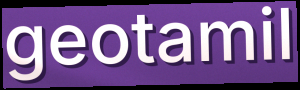
geotamil